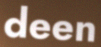
deen